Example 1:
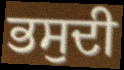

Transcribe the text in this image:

ਭਸੁਦੀ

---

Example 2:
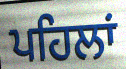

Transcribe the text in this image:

ਪਹਿਲਾਂ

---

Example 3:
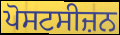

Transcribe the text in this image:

ਪੋਸਟਸੀਜ਼ਨ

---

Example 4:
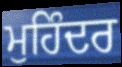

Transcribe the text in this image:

ਮੁਹਿੰਦਰ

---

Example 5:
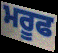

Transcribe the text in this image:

ਮਰੂਫ